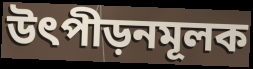
উৎপীড়নমূলক